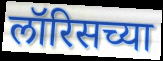
लॉरिसच्या